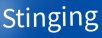
Stinging